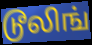
டூலிங்